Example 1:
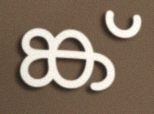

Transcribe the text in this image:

ങ്ക്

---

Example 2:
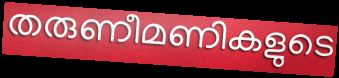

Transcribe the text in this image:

തരുണീമണികളുടെ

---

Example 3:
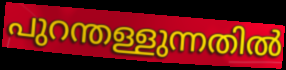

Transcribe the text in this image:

പുറന്തള്ളുന്നതിൽ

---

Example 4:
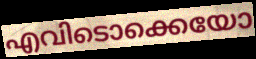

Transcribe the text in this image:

എവിടൊക്കെയോ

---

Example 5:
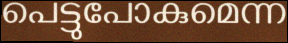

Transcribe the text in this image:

പെട്ടുപോകുമെന്ന